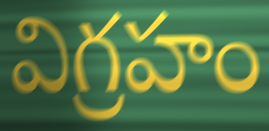
విగ్రహం